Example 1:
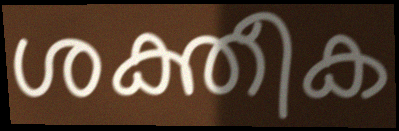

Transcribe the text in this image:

ശക്തീക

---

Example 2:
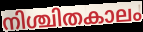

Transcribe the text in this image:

നിശ്ചിതകാലം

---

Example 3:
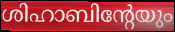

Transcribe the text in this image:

ശിഹാബിന്റേയും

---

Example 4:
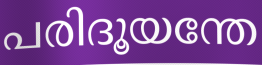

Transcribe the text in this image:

പരിദൂയന്തേ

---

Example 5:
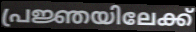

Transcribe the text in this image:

പ്രജ്ഞയിലേക്ക്